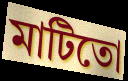
মাটিতো